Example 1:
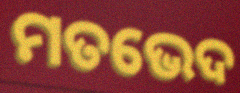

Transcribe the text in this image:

ମତଭେଦ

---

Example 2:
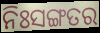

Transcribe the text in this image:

ନିଃସଙ୍ଗତର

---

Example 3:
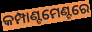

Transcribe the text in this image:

କମ୍ପାଣ୍ଟମେଣ୍ଟରେ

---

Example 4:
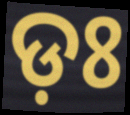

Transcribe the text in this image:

ଡ଼ଃ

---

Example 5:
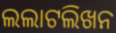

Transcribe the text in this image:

ଲଲାଟଲିଖନ